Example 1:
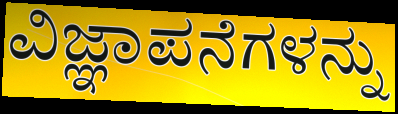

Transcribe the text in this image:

ವಿಜ್ಞಾಪನೆಗಳನ್ನು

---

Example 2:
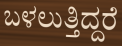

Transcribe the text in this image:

ಬಳಲುತ್ತಿದ್ದರೆ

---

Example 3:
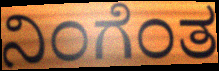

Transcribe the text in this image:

ನಿಂಗೆಂತ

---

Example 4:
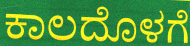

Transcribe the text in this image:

ಕಾಲದೊಳಗೆ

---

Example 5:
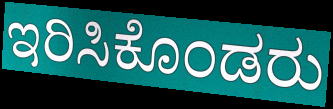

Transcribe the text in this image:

ಇರಿಸಿಕೊಂಡರು